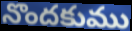
నొందకుము